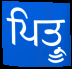
ਪਿਤ੍ਰੂ